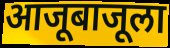
आजूबाजूला